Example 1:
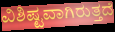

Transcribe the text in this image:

ವಿಶಿಷ್ಟವಾಗಿರುತ್ತದೆ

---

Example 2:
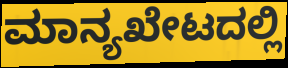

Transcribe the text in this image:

ಮಾನ್ಯಖೇಟದಲ್ಲಿ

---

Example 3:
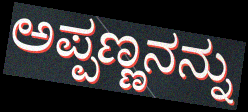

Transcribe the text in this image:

ಅಪ್ಪಣ್ಣನನ್ನು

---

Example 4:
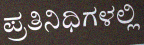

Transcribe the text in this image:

ಪ್ರತಿನಿಧಿಗಳಲ್ಲಿ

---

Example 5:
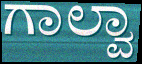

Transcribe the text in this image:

ಗಾಲ್ವಾ